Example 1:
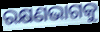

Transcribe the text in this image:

ରକ୍ଷଣଭାଗକୁ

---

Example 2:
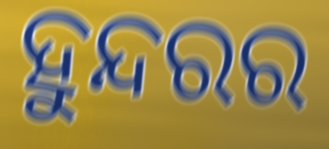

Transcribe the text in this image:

ହୁନ୍ଦରର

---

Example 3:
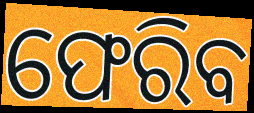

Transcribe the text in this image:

ଫେରିବ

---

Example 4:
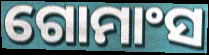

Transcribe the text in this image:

ଗୋମାଂସ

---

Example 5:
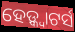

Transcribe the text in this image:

ହେଡ଼୍କ୍ୱାଟର୍ସ